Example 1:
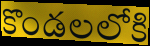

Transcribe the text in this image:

కొండలలోకి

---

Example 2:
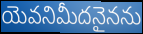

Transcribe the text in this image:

యెవనిమీదనైనను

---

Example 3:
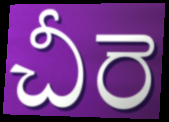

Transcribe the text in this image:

చీరె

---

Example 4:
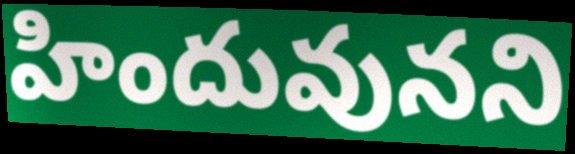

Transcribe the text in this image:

హిందువునని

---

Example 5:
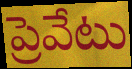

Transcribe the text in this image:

ప్రెవేటు